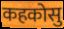
कहकोसु